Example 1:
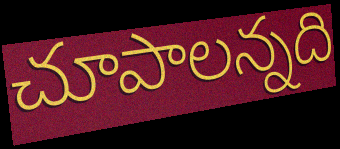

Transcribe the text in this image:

చూపాలన్నది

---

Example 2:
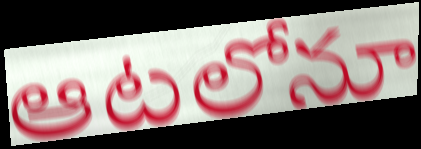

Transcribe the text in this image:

ఆటలోనూ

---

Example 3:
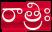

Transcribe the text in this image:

రాత్రిః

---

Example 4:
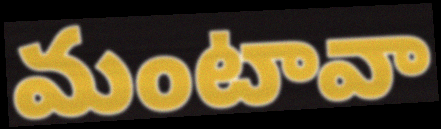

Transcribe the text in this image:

మంటావా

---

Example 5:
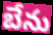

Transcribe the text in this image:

బేను